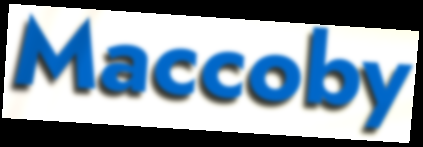
Maccoby